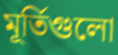
মূর্তিগুলো